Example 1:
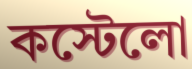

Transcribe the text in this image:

কস্টেলো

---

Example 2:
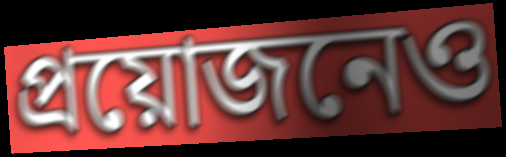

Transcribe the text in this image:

প্রয়োজনেও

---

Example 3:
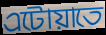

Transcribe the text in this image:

এটোয়াতে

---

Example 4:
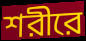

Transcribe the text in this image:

শরীরে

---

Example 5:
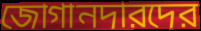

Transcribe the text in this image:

জোগানদারদের